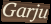
Garju